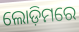
ଲୋଡ଼ିମରେ